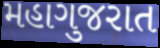
મહાગુજરાત